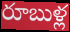
రూబుళ్ల